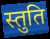
स्तुति